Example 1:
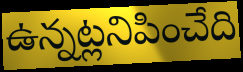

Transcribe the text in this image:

ఉన్నట్లనిపించేది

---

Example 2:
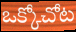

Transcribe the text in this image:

ఒక్కోచోట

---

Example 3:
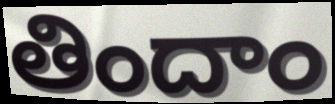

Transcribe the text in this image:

తిందాం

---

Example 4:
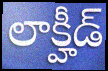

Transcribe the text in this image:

లాక్హీడ్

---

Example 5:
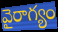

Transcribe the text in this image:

వైరాగ్యం